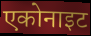
एकोनाइट